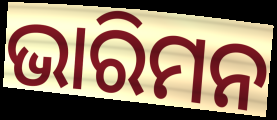
ଭାରିମନ